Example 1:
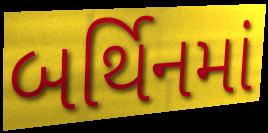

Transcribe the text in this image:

બર્થિનમાં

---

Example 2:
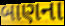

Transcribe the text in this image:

બાણના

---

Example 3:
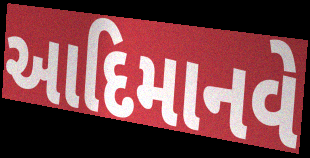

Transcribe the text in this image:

આદિમાનવે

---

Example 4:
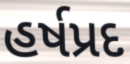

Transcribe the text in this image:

હર્ષપ્રદ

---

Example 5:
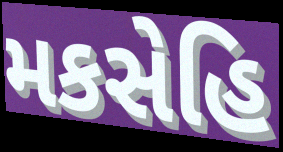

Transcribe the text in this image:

મકસેહિ